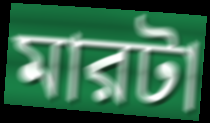
মারটা